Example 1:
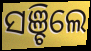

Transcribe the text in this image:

ସଞ୍ଚିଲେ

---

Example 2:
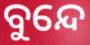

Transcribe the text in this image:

ବୁନ୍ଦେ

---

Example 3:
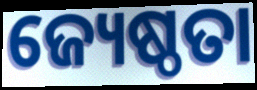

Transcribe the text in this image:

ଜ୍ୟେଷ୍ଠତା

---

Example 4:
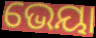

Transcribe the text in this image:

ଭେୟା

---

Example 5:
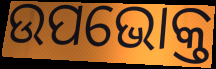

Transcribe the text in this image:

ଉପଭୋକ୍ତ